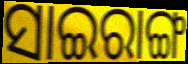
ସାଇରାଙ୍ଗ